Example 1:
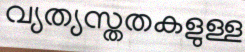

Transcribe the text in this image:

വ്യത്യസ്തതകളുള്ള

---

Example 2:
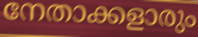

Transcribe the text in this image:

നേതാക്കളാരും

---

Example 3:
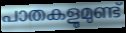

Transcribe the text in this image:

പാതകളുമുണ്ട്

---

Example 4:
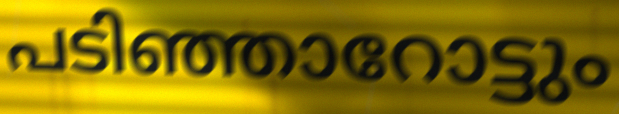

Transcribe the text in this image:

പടിഞ്ഞാറോട്ടും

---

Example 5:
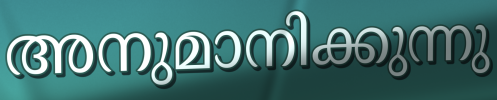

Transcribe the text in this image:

അനുമാനിക്കുന്നു